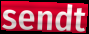
sendt